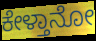
ಕೇಳ್ತಾನೋ